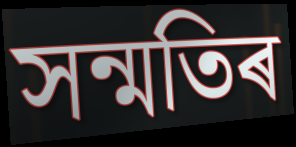
সন্মতিৰ